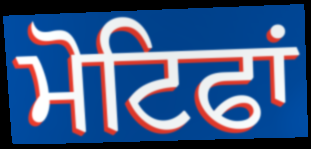
ਮੋਟਿਫਾਂ